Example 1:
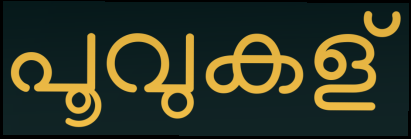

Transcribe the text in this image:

പൂവുകള്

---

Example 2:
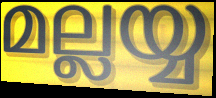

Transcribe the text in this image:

മല്ലയ്യ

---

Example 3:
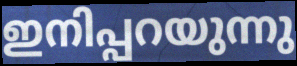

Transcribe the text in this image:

ഇനിപ്പറയുന്നു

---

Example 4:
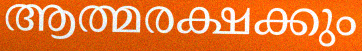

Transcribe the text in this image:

ആത്മരക്ഷക്കും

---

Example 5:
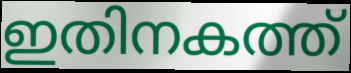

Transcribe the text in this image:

ഇതിനകത്ത്